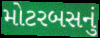
મોટરબસનું